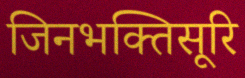
जिनभक्तिसूरि